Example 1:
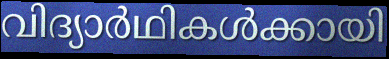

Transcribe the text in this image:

വിദ്യാർഥികൾക്കായി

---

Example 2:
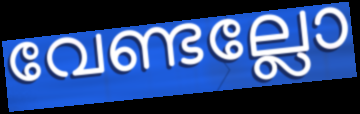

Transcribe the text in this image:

വേണ്ടല്ലോ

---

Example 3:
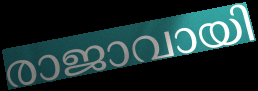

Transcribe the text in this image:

രാജാവായി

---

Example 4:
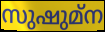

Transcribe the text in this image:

സുഷുമ്ന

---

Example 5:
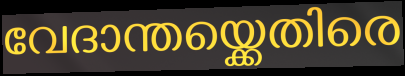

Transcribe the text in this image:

വേദാന്തയ്ക്കെതിരെ